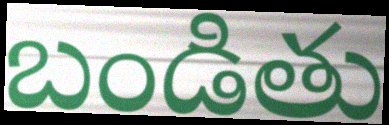
బండితు